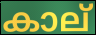
കാല്